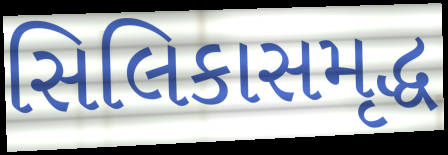
સિલિકાસમૃદ્ધ